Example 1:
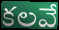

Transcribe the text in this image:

కలవే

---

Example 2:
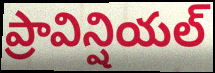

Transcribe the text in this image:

ప్రావిన్షియల్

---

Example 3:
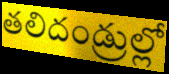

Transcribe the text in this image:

తలిదండ్రుల్లో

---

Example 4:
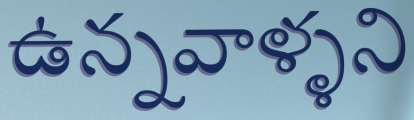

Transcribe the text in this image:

ఉన్నవాళ్ళని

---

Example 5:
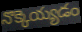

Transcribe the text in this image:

నొక్కెయ్యడం